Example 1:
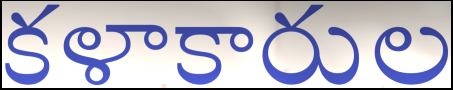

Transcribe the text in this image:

కళాకారుల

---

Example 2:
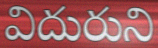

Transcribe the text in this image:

విదురుని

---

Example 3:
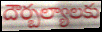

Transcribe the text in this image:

దౌర్బల్యాలకు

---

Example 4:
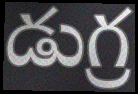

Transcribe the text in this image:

డుగ్ర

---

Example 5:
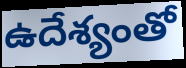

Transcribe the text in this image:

ఉదేశ్యంతో